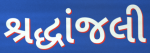
શ્રદ્ધાંજલી